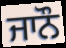
ਜਾਨੌ